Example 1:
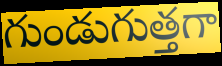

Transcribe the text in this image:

గుండుగుత్తగా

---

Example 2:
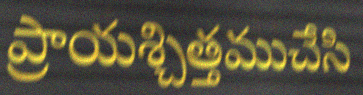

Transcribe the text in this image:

ప్రాయశ్చిత్తముచేసి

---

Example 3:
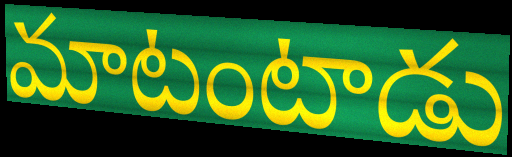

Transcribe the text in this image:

మాటంటాడు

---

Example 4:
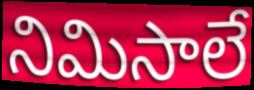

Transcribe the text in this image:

నిమిసాలే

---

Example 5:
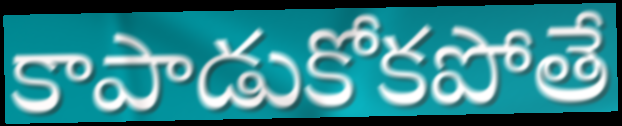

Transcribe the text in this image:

కాపాడుకోకపోతే